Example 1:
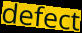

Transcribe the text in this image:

defect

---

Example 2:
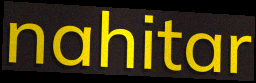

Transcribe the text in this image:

nahitar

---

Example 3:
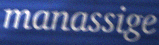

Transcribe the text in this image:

manassige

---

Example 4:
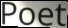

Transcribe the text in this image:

Poet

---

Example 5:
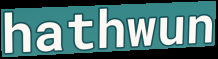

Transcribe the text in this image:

hathwun